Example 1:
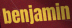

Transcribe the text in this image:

benjamin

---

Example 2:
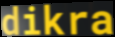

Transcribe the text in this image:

dikra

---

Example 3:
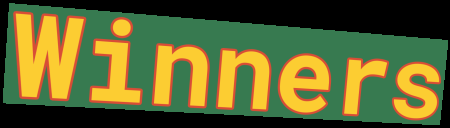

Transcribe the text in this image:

Winners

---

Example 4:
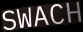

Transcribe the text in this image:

SWACH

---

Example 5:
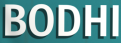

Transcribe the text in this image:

BODHI